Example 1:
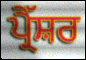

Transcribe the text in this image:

ਪ੍ਰੈੱਸ਼ਰ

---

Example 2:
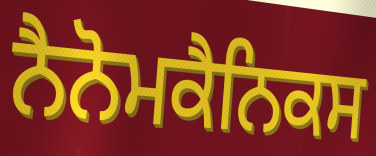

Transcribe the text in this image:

ਨੈਨੋਮਕੈਨਿਕਸ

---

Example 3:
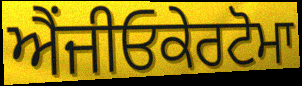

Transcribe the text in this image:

ਐਂਜੀਓਕੇਰਟੋਮਾ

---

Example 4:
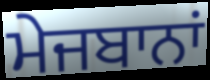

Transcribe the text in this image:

ਮੇਜਬਾਨਾਂ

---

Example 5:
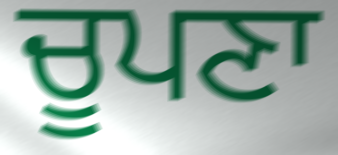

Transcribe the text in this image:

ਚੂਪਣਾ